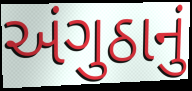
અંગુઠાનું